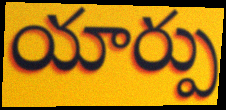
యార్పు